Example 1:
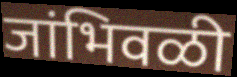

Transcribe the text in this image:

जांभिवळी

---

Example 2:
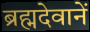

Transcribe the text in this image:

ब्रह्मदेवानें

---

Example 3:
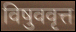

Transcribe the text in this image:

विषुववृत्त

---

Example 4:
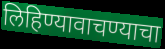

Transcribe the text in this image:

लिहिण्यावाचण्याचा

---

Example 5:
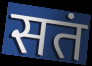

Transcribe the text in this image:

सतं